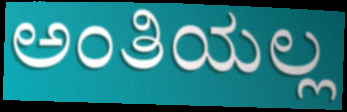
ಅಂತಿಯಲ್ಲ